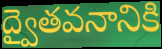
ద్వైతవనానికి